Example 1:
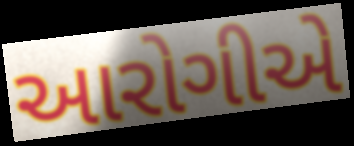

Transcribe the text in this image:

આરોગીએ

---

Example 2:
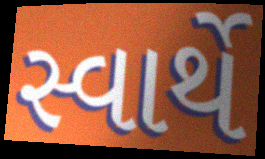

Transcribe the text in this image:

સ્વાર્થે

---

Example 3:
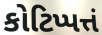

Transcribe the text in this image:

કોટિપ્પત્તં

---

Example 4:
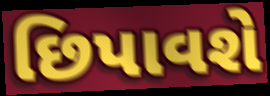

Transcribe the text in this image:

છિપાવશે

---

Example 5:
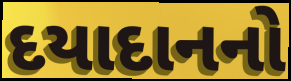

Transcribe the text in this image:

દયાદાનનો